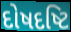
દોષદષ્ટિ